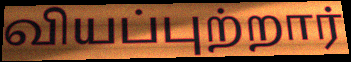
வியப்புற்றார்